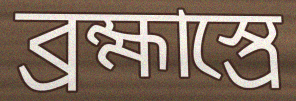
ব্রহ্মাস্ত্রে